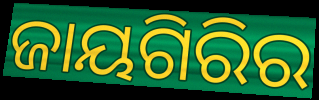
ଜାୟଗିରିର